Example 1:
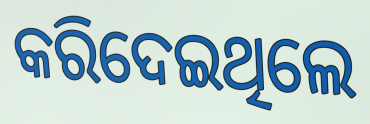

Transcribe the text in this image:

କରିଦେଇଥିଲେ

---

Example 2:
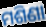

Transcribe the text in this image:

ମଶିଣା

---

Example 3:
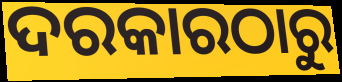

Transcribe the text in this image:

ଦରକାରଠାରୁ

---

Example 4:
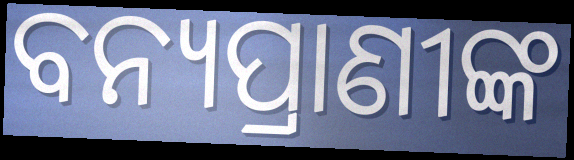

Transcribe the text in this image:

ବନ୍ୟପ୍ରାଣୀଙ୍କ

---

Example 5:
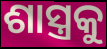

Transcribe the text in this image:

ଶାସ୍ତ୍ରକୁ